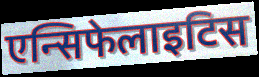
एन्सिफेलाइटिस